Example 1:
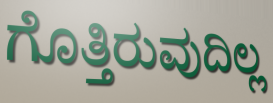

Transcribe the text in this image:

ಗೊತ್ತಿರುವುದಿಲ್ಲ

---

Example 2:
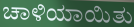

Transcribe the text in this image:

ಚಾಳಿಯಾಯಿತು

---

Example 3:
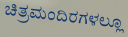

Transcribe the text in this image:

ಚಿತ್ರಮಂದಿರಗಳಲ್ಲೂ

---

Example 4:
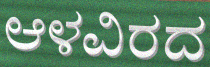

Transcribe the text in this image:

ಆಳವಿರದ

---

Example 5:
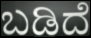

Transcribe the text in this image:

ಬಡಿದೆ